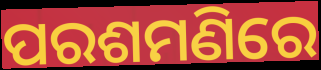
ପରଶମଣିରେ